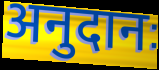
अनुदानः